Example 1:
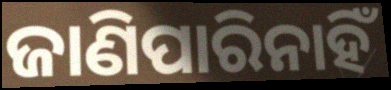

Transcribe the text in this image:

ଜାଣିପାରିନାହିଁ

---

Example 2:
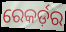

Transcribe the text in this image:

ରେକର୍ଡ଼ର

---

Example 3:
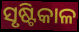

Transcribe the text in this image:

ସୃଷ୍ଟିକାଳ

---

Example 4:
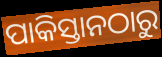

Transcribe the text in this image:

ପାକିସ୍ତାନଠାରୁ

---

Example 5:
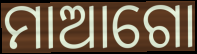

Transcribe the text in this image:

ମାଆଗୋ